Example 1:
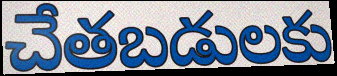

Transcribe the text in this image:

చేతబడులకు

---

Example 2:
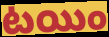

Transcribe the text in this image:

టయిం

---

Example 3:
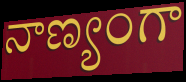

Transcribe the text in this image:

నాణ్యంగా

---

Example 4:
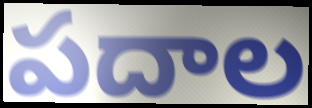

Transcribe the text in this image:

పదాల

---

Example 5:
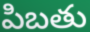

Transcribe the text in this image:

పిబతు